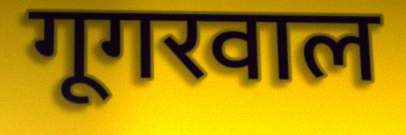
गूगरवाल